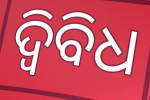
ଦ୍ୱିବିଧ